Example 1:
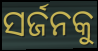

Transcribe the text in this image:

ସର୍ଜନକୁ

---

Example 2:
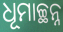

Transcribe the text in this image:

ଧୂମାଚ୍ଛନ୍ନ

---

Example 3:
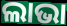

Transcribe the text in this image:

ଲାଭା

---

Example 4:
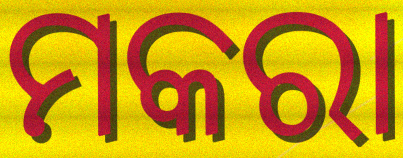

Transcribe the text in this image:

ମକରା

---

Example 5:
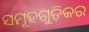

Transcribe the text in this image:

ସମୂହଗୁଡ଼ିକର